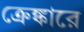
ক্রেঙ্কারে